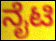
ನೈಟಿ